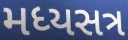
મધ્યસત્ર